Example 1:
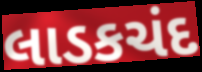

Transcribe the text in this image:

લાડકચંદ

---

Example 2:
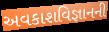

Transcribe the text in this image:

અવકાશવિજ્ઞાનની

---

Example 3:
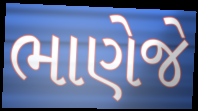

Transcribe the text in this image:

ભાણેજે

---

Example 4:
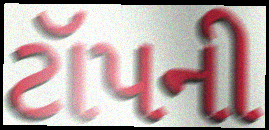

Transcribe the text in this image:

ટૉપની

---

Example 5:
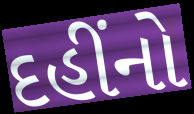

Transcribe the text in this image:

દહીંનો